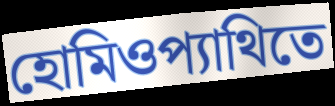
হোমিওপ্যাথিতে